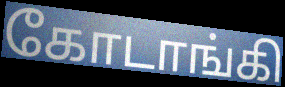
கோடாங்கி